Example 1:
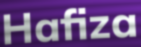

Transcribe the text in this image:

Hafiza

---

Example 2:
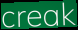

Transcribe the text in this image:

creak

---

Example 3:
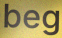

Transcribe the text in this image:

beg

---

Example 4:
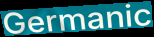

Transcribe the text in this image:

Germanic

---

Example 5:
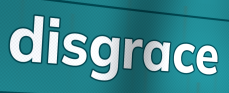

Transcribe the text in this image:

disgrace